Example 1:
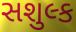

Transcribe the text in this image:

સશુલ્ક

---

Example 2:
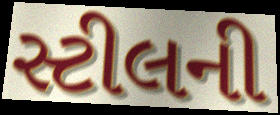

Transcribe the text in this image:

સ્ટીલની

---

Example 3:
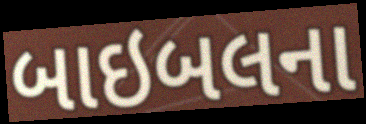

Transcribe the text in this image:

બાઇબલના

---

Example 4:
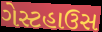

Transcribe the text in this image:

ગેસ્ટહાઉસ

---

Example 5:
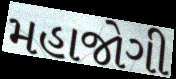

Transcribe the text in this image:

મહાજોગી